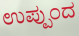
ಉಪ್ಪುಂದ